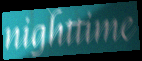
nighttime